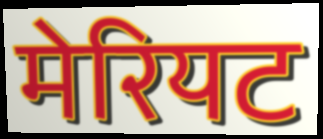
मेरियट